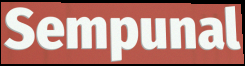
Sempunal